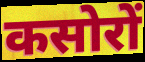
कसोरों